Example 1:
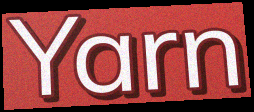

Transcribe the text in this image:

Yarn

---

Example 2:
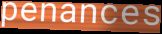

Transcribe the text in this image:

penances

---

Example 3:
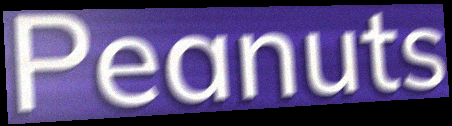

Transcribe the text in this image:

Peanuts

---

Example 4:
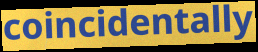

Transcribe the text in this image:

coincidentally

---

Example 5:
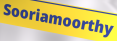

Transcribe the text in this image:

Sooriamoorthy